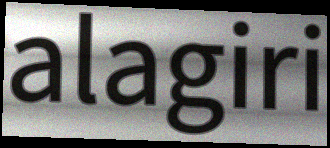
alagiri